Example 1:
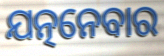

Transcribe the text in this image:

ଯତ୍ନନେବାର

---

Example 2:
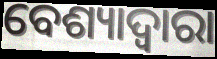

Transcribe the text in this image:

ବେଶ୍ୟାଦ୍ୱାରା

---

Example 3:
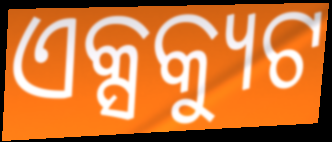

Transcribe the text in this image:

ଏକ୍ସକ୍ୟୁଟ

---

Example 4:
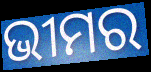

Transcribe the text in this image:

ଭୀମର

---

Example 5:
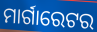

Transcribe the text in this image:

ମାର୍ଗାରେଟର